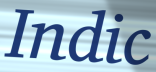
Indic